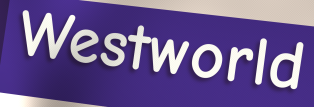
Westworld